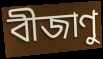
বীজাণু